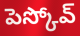
పెస్కోవ్